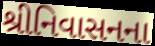
શ્રીનિવાસનના